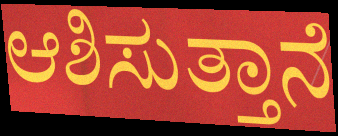
ಆಶಿಸುತ್ತಾನೆ